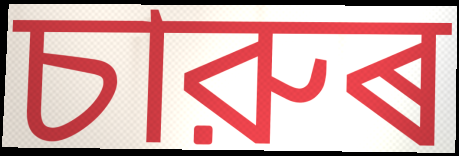
চাৰুৰ